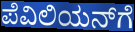
ಪೆವಿಲಿಯನ್‌ಗೆ